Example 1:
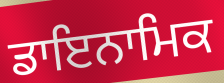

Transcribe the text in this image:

ਡਾਇਨਾਮਿਕ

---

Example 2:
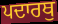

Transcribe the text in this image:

ਪਦਾਰਥੁ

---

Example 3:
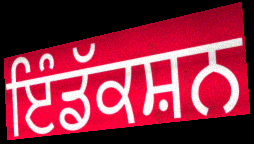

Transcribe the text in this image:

ਇੰਡੱਕਸ਼ਨ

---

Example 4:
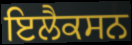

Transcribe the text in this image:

ਇਲੈਕਸਨ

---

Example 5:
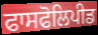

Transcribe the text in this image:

ਫਾਸਫੋਲਿਪੀਡ